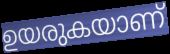
ഉയരുകയാണ്